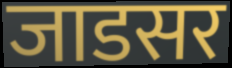
जाडसर